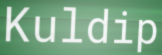
Kuldip